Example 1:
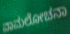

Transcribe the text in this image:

ವಾಮಲೋಚನಾ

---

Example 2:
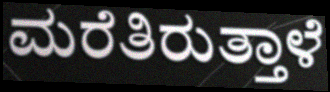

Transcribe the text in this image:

ಮರೆತಿರುತ್ತಾಳೆ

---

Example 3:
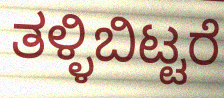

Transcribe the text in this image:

ತಳ್ಳಿಬಿಟ್ಟರೆ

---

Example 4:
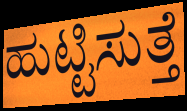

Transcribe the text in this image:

ಹುಟ್ಟಿಸುತ್ತೆ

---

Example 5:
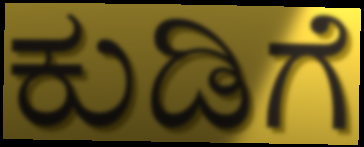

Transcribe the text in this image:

ಕುಡಿಗೆ